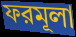
ফরমূলা